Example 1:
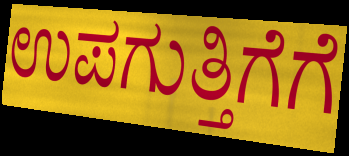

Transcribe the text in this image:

ಉಪಗುತ್ತಿಗೆಗೆ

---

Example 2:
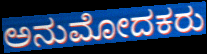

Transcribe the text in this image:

ಅನುಮೋದಕರು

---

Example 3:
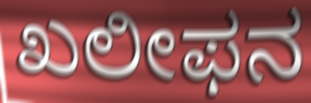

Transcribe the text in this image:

ಖಲೀಫನ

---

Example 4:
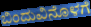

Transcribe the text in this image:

ಬಿಂದುವಿನೊಳಗೆ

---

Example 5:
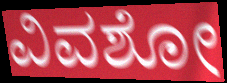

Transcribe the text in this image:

ವಿವಶೋ